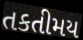
તકતીમય